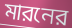
মারনের